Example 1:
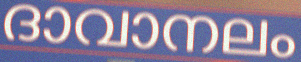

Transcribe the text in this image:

ദാവാനലം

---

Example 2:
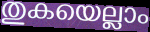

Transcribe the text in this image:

തുകയെല്ലാം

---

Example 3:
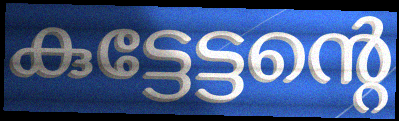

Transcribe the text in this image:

കുട്ടേട്ടന്റെ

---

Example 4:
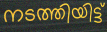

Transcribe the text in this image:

നടത്തിയിട്ട്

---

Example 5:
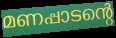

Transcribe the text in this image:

മണപ്പാടന്റെ